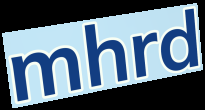
mhrd